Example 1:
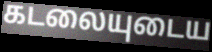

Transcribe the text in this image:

கடலையுடைய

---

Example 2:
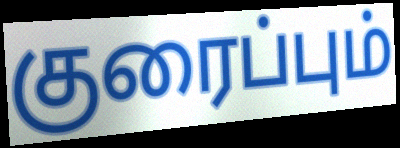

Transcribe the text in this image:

குரைப்பும்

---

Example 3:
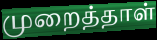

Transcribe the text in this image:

முறைத்தாள்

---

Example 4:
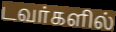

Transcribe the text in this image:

டவர்களில்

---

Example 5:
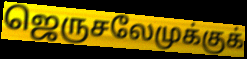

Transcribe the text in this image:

ஜெருசலேமுக்குக்